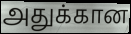
அதுக்கான